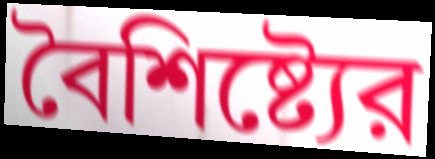
বৈশিষ্ট্যের